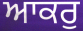
ਆਕਰੁ